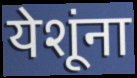
येशूंना